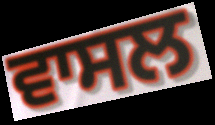
ਵਾਸਲ